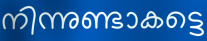
നിന്നുണ്ടാകട്ടെ